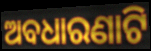
ଅବଧାରଣାଟି